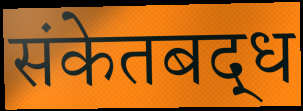
संकेतबद्ध